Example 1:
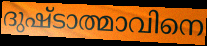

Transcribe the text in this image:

ദുഷ്ടാത്മാവിനെ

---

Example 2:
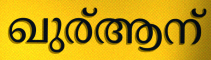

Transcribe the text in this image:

ഖുര്ആന്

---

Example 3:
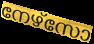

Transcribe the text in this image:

നേഴ്സോ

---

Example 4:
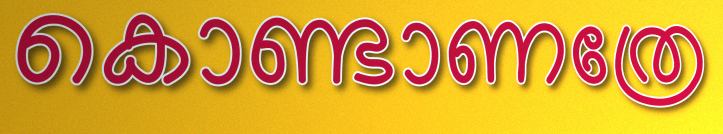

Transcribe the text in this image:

കൊണ്ടാണത്രേ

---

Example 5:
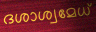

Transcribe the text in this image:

ദശാശ്വമേധ്